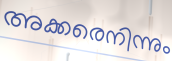
അക്കരെനിന്നും